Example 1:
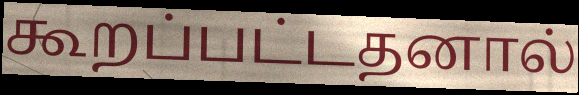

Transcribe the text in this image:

கூறப்பட்டதனால்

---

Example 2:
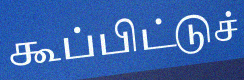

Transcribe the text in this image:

கூப்பிட்டுச்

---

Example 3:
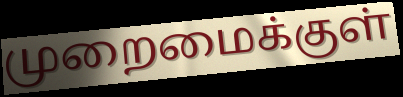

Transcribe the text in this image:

முறைமைக்குள்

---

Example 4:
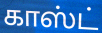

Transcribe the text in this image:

காஸ்ட்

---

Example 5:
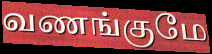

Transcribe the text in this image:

வணங்குமே